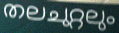
തലചുറ്റലും